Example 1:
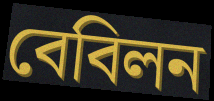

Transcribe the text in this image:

বেবিলন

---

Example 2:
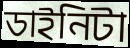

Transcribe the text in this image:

ডাইনিটা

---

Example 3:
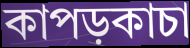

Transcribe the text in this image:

কাপড়কাচা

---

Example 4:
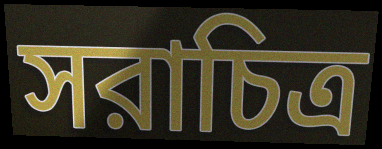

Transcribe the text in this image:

সরাচিত্র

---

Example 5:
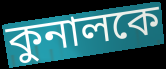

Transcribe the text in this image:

কুনালকে